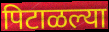
पिटाळल्या